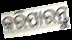
କରିପାରନ୍ତୁ